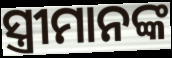
ସ୍ତ୍ରୀମାନଙ୍କ